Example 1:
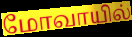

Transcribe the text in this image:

மோவாயில்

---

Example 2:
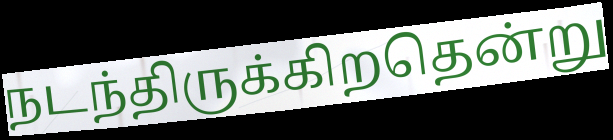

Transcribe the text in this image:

நடந்திருக்கிறதென்று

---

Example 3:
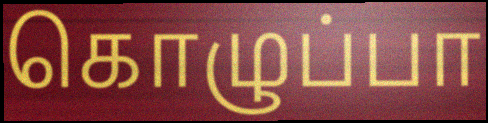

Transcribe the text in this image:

கொழுப்பா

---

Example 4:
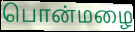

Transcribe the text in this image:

பொன்மழை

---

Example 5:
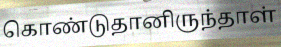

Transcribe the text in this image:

கொண்டுதானிருந்தாள்